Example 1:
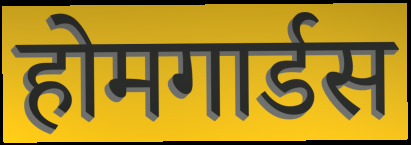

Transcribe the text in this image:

होमगार्डस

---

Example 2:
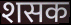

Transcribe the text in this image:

शसक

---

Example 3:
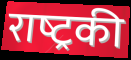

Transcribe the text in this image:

राष्ट्रकी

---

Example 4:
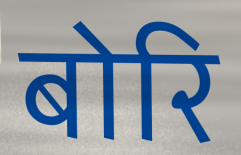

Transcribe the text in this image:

बोरि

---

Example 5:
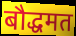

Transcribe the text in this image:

बौद्धमत